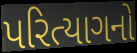
પરિત્યાગનો